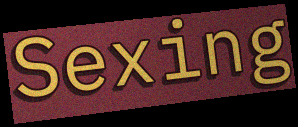
Sexing